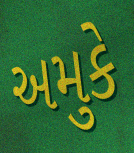
અમુકે